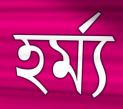
হর্ম্য